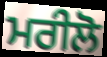
ਮਰੀਲੋ